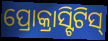
ପ୍ରୋକ୍ରାସ୍ଟିଟିସ୍